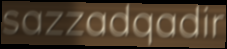
sazzadqadir